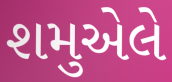
શમુએલે